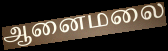
ஆனைமலை